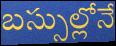
బస్సుల్లోనే